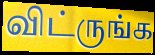
விட்ருங்க